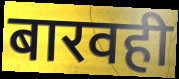
बारवही